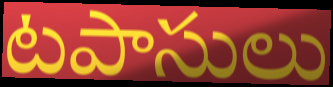
టపాసులు